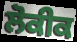
ਲੋਕੀਕ